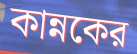
কান্নকের